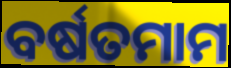
ବର୍ଷତମାମ